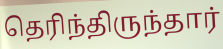
தெரிந்திருந்தார்